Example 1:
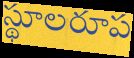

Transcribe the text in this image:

స్థూలరూప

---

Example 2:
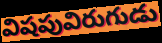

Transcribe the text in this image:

విషపువిరుగుడు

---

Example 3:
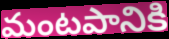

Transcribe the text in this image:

మంటపానికి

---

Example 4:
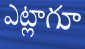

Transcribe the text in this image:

ఎట్లాగూ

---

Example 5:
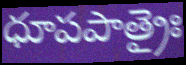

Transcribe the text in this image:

ధూపపాత్రైః